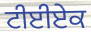
ਟੀਈਏਕ